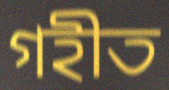
গহীত